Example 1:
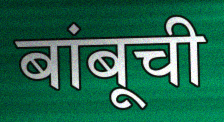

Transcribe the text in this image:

बांबूची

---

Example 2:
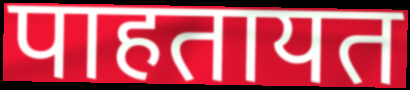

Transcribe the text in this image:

पाहतायत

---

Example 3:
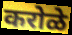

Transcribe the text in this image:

करोळे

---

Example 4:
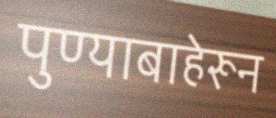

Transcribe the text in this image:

पुण्याबाहेरून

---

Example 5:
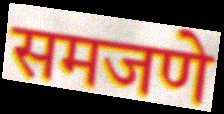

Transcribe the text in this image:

समजणे